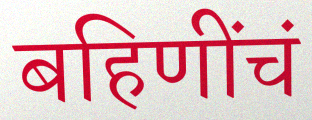
बहिणींचं